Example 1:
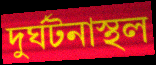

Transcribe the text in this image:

দুর্ঘটনাস্থল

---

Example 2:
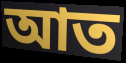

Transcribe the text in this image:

আত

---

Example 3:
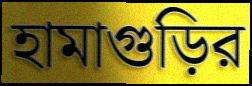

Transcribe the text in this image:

হামাগুড়ির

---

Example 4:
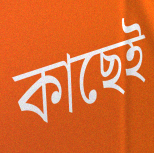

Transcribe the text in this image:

কাছেই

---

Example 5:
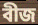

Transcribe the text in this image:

বীজ